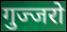
गुज्जरो